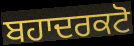
ਬਹਾਦਰਕਟੋ